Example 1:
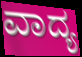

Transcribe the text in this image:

ವಾದ್ಯ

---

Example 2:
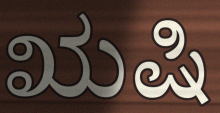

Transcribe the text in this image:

ಋಷಿ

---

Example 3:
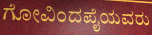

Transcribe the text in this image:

ಗೋವಿಂದಪೈಯವರು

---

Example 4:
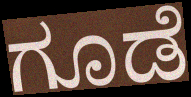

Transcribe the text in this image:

ಗೂಡೆ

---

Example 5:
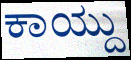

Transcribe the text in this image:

ಕಾಯ್ದು